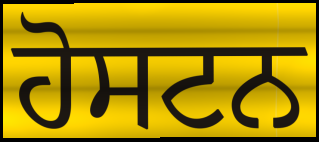
ਹੋਸਟਨ